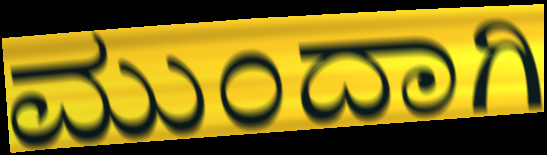
ಮುಂದಾಗಿ